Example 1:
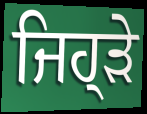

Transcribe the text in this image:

ਜਿਹ੍ੜੇ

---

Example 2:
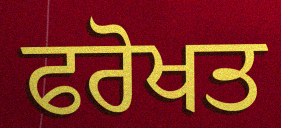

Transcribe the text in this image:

ਫਰੋਖਤ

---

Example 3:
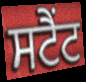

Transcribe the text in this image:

ਸਟੈਂਟ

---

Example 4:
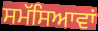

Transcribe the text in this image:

ਸਮੱਸਿਆਵਾਂ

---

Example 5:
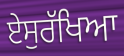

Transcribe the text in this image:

ਏਸੁਰੱਖਿਆ